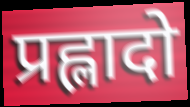
प्रह्लादो